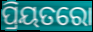
ପ୍ରିୟତରୋ